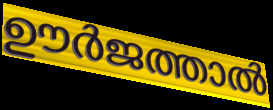
ഊർജത്താൽ